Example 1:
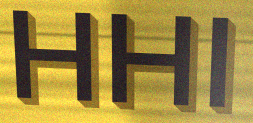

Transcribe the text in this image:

HHI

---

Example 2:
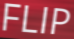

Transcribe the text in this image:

FLIP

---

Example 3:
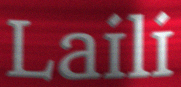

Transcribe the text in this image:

Laili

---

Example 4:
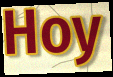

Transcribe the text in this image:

Hoy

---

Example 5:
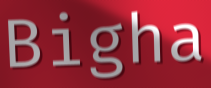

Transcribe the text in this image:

Bigha